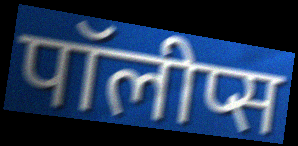
पॉलीप्स